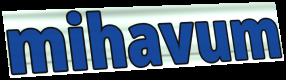
mihavum